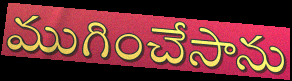
ముగించేసాను